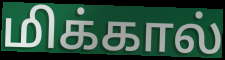
மிக்கால்